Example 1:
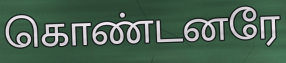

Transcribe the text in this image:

கொண்டனரே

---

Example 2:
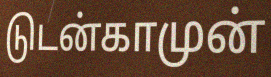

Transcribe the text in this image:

டுடன்காமுன்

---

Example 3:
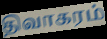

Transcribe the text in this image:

திவாகரம்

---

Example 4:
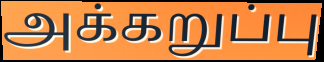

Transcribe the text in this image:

அக்கறுப்பு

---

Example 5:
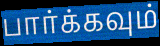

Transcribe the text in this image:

பார்க்கவும்